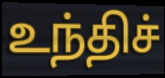
உந்திச்